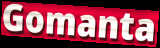
Gomanta